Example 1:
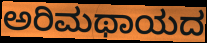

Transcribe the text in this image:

ಅರಿಮಥಾಯದ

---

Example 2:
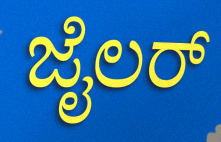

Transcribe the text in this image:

ಜೈಲರ್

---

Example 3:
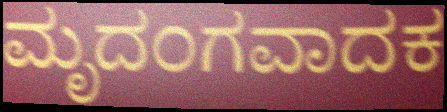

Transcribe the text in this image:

ಮೃದಂಗವಾದಕ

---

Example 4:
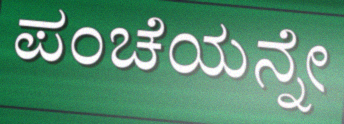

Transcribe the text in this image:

ಪಂಚೆಯನ್ನೇ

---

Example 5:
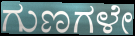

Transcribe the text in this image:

ಗುಣಗಳೇ